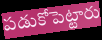
పడుకోపెట్టారు